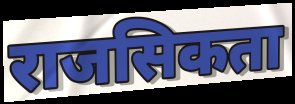
राजसिकता